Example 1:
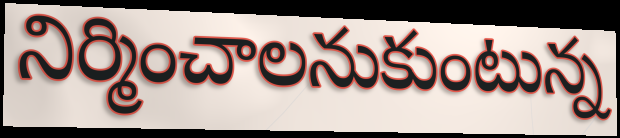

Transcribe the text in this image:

నిర్మించాలనుకుంటున్న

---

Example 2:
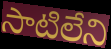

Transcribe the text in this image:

సాటిలేని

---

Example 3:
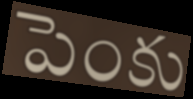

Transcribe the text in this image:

పెంకు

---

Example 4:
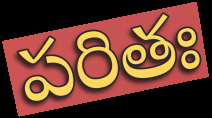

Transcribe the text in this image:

పరితః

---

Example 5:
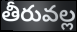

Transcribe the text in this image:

తీరువల్ల